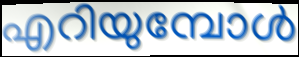
എറിയുമ്പോൾ